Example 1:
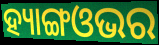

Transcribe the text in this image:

ହ୍ୟାଙ୍ଗଓଭର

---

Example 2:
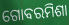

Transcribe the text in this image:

ଗୋବରମିଶା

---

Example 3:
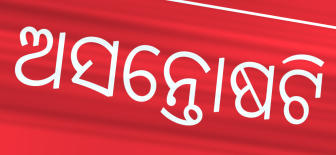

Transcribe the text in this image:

ଅସନ୍ତୋଷଟି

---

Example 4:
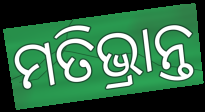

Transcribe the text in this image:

ମତିଭ୍ରାନ୍ତ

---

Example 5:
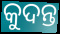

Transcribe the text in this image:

କୁଦନ୍ତ